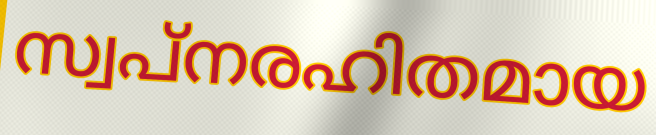
സ്വപ്നരഹിതമായ